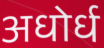
अधोर्ध